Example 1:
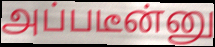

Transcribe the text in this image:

அப்படீன்னு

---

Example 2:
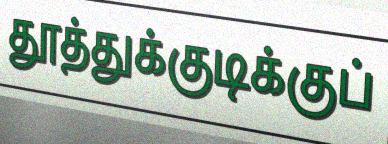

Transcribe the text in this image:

தூத்துக்குடிக்குப்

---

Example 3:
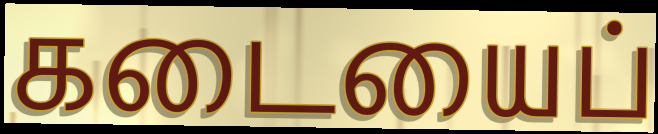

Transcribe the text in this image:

கடையைப்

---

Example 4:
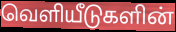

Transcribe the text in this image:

வெளியீடுகளின்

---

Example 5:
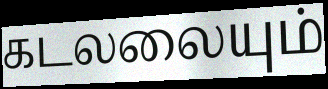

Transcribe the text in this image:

கடலலையும்